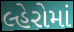
લ્હેરોમાં